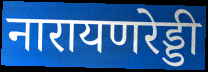
नारायणरेड्डी